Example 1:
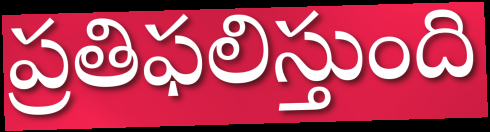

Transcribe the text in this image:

ప్రతిఫలిస్తుంది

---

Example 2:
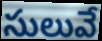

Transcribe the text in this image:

సులువే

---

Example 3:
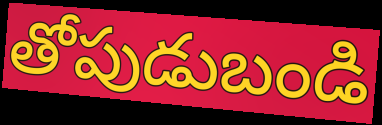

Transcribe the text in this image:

తోపుడుబండి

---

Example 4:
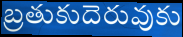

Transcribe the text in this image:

బ్రతుకుదెరువుకు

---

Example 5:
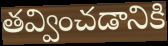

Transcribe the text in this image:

తవ్వించడానికి